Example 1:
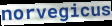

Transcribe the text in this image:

norvegicus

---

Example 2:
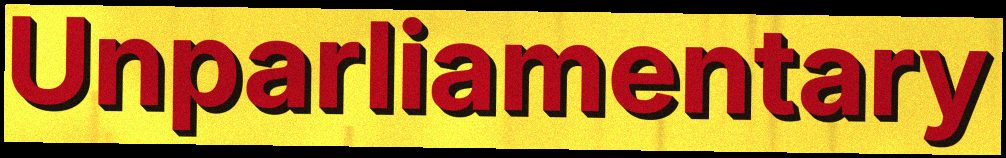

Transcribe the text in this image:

Unparliamentary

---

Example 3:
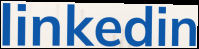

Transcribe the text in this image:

linkedin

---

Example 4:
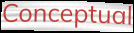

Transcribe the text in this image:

Conceptual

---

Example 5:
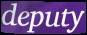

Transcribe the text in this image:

deputy